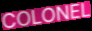
COLONEL